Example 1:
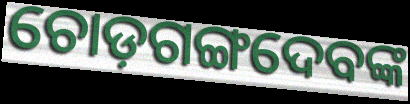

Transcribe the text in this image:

ଚୋଡ଼ଗଙ୍ଗଦେବଙ୍କ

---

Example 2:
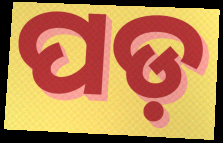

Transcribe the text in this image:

ପଡ଼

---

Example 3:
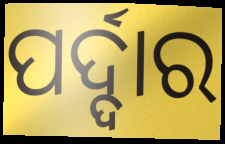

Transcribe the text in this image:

ପର୍ଦ୍ଦାର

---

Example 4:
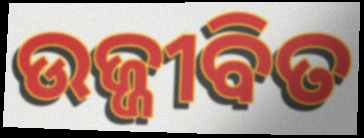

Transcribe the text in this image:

ଉଜ୍ଜୀବିତ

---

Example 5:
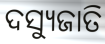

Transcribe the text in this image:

ଦସ୍ୟୁଜାତି